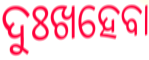
ଦୁଃଖହେବା